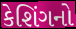
કેશિંગનો